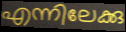
എന്നിലേക്കു